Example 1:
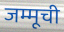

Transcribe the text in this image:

जम्मूची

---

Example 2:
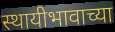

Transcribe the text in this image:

स्थायीभावाच्या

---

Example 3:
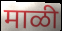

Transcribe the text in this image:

माळी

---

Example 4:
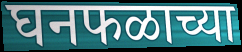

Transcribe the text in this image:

घनफळाच्या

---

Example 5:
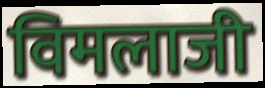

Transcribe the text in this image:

विमलाजी